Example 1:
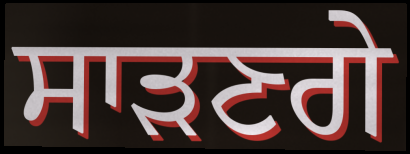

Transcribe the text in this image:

ਸਾੜਣਗੇ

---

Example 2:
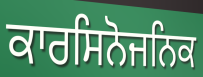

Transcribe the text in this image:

ਕਾਰਸਿਨੋਜਨਿਕ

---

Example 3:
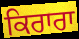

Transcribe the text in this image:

ਕਿਰਾਰਾ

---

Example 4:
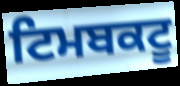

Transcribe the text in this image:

ਟਿਮਬਕਟੂ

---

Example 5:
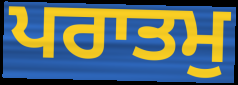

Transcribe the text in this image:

ਪਰਾਤਮੁ